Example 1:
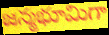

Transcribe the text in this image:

జన్మభూమిగా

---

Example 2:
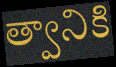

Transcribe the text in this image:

త్వానికి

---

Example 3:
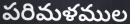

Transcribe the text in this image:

పరిమళముల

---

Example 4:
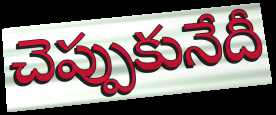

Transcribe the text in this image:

చెప్పుకునేదీ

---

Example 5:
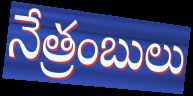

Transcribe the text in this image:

నేత్రంబులు